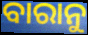
ବାରାନୁ